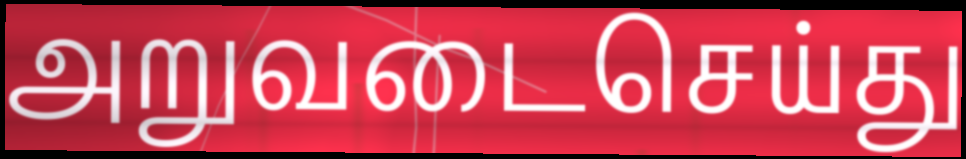
அறுவடைசெய்து